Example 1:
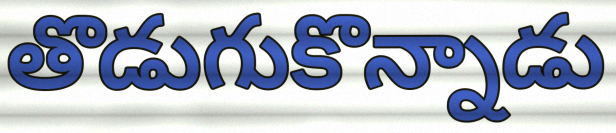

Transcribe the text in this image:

తొడుగుకొన్నాడు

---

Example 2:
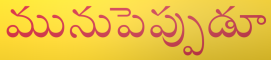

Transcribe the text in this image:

మునుపెప్పుడూ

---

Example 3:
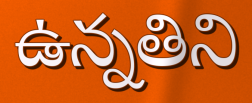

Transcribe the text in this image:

ఉన్నతిని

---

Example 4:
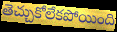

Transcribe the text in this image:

తెచ్చుకోలేకపోయింది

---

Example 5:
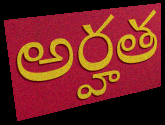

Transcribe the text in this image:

అర్హత